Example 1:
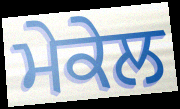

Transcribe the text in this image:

ਮੇਕੇਲ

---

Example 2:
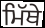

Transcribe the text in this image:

ਮਿੱਥੇ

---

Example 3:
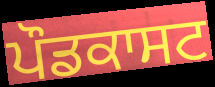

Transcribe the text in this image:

ਪੌਡਕਾਸਟ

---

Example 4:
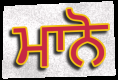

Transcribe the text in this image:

ਮਾਨੋ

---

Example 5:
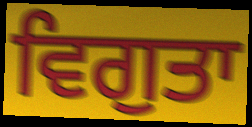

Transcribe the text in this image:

ਵਿਗੁਤਾ